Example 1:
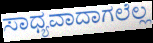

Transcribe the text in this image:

ಸಾಧ್ಯವಾದಾಗಲೆಲ್ಲ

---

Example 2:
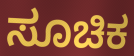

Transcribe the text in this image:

ಸೂಚಿಕ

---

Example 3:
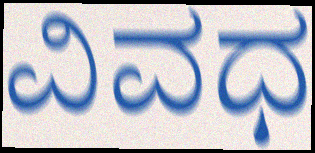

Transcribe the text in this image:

ವಿವಧ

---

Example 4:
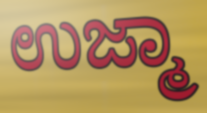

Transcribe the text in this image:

ಉಜ್ಮಾ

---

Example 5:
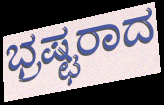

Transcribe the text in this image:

ಭ್ರಷ್ಟರಾದ